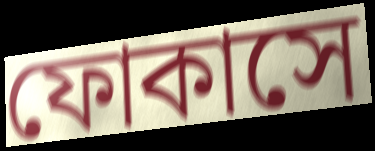
ফোকাসে